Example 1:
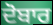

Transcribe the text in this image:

ਦੋਬਾਰ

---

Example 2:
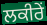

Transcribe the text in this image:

ਲਕੀਰੇਂ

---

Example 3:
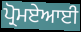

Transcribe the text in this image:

ਪ੍ਰੋਮਏਆਈ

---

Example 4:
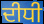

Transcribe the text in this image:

ਦੀਧੀ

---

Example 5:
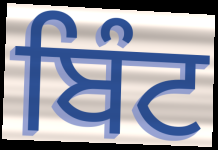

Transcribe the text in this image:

ਬਿੰਟ